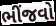
ભીંજવો